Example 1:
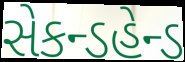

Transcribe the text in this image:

સેકન્ડહેન્ડ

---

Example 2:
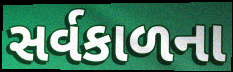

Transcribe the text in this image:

સર્વકાળના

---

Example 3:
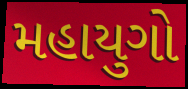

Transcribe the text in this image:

મહાયુગો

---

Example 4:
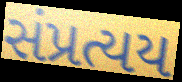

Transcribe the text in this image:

સંપ્રત્યય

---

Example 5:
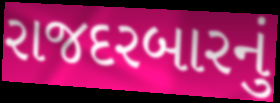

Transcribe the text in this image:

રાજદરબારનું